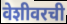
वेशीवरची